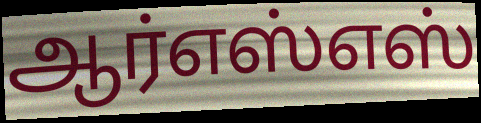
ஆர்எஸ்எஸ்